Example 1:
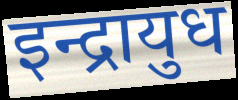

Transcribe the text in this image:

इन्द्रायुध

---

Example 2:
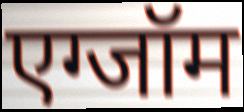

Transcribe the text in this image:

एग्जॉम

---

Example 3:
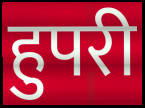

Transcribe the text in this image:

हुपरी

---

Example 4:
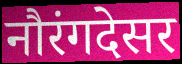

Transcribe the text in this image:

नौरंगदेसर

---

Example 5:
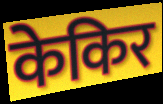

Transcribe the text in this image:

केकिर